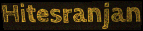
Hitesranjan